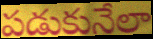
పడుకునేలా